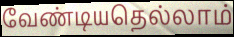
வேண்டியதெல்லாம்